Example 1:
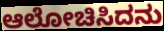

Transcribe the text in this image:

ಆಲೋಚಿಸಿದನು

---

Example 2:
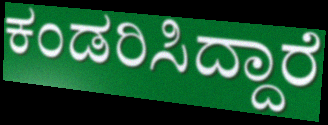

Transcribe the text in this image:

ಕಂಡರಿಸಿದ್ದಾರೆ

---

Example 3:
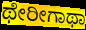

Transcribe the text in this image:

ಥೇರೀಗಾಥಾ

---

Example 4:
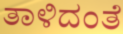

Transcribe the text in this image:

ತಾಳಿದಂತೆ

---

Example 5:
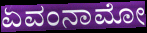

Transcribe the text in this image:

ಏವಂನಾಮೋ